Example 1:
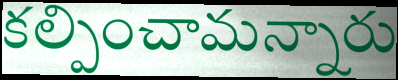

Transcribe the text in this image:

కల్పించామన్నారు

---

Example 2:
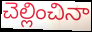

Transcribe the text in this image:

చెల్లించినా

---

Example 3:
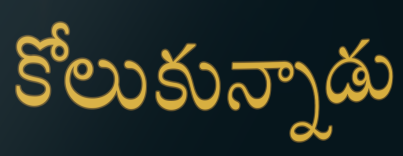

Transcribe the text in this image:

కోలుకున్నాడు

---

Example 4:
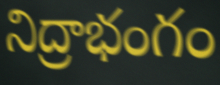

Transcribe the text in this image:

నిద్రాభంగం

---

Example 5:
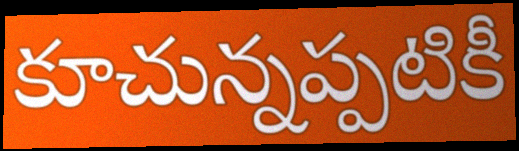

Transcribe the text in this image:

కూచున్నప్పటికీ